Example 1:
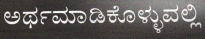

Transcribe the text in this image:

ಅರ್ಥಮಾಡಿಕೊಳ್ಳುವಲ್ಲಿ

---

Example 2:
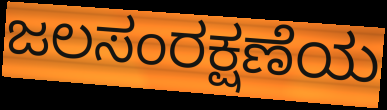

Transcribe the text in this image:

ಜಲಸಂರಕ್ಷಣೆಯ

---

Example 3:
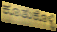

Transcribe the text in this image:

ಕೂತುಕೊಳ್ಳಿ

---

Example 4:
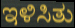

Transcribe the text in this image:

ಇಳಿಸಿತು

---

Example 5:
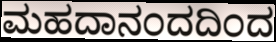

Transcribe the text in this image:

ಮಹದಾನಂದದಿಂದ